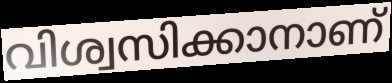
വിശ്വസിക്കാനാണ്